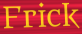
Frick